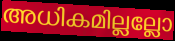
അധികമില്ലല്ലോ